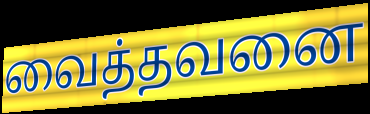
வைத்தவனை